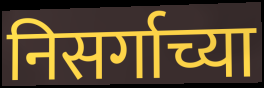
निसर्गाच्या